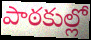
పాఠకుల్లో